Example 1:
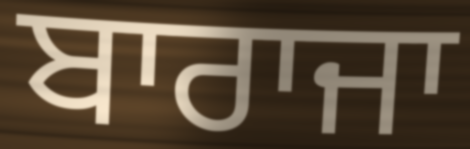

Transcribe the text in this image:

ਬਾਰਾਜਾ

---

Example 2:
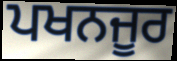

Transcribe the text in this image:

ਪਖਨਜੂਰ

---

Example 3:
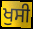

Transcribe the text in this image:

ਖੁਸੀ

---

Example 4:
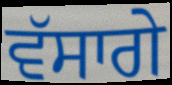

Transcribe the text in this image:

ਵੱਸਾਗੇ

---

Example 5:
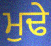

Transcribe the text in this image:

ਮੁਢੇ